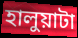
হালুয়াটা